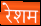
रेशम